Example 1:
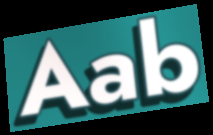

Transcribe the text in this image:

Aab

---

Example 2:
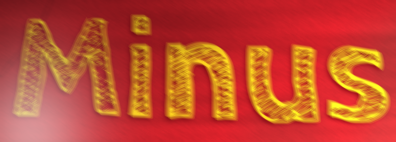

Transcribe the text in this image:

Minus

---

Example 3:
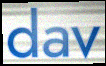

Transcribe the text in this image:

dav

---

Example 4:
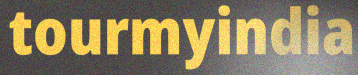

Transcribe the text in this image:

tourmyindia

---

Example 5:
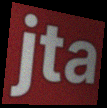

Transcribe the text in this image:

jta